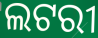
ଲଟରୀ